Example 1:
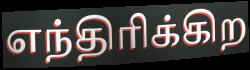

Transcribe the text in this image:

எந்திரிக்கிற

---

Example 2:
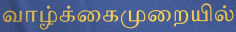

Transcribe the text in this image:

வாழ்க்கைமுறையில்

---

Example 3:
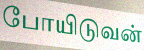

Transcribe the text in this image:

போயிடுவன்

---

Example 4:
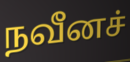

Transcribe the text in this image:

நவீனச்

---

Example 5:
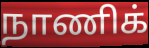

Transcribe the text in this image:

நாணிக்